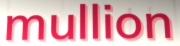
mullion